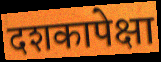
दशकापेक्षा